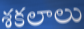
శకలాలు